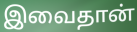
இவைதான்